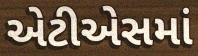
એટીએસમાં